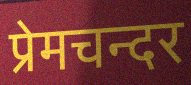
प्रेमचन्दर